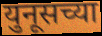
युनूसच्या